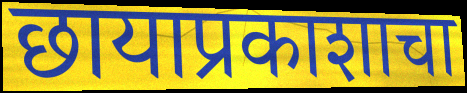
छायाप्रकाशाचा